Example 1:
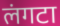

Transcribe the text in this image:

लंगटा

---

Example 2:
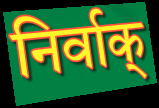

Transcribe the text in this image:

निर्वाक्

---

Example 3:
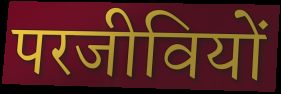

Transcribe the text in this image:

परजीवियों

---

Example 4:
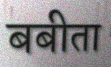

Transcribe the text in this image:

बबीता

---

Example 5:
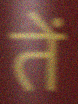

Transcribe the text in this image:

तें